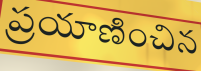
ప్రయాణించిన